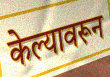
केल्यावरून